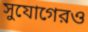
সুযোগেরও